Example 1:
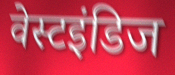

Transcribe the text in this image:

वेस्टइंडिज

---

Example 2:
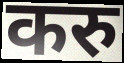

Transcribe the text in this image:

करु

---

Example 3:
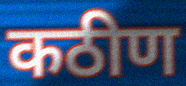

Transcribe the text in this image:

कठीण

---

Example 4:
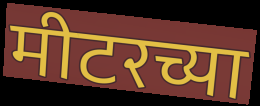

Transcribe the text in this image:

मीटरच्या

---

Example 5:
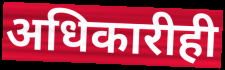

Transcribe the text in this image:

अधिकारीही